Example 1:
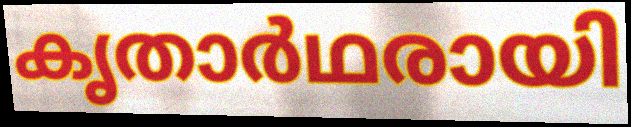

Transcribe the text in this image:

കൃതാർഥരായി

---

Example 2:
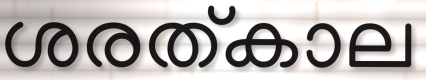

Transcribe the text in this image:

ശരത്കാല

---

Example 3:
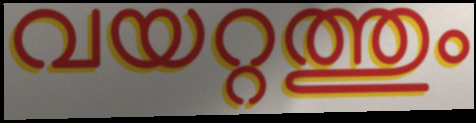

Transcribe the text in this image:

വയറ്റത്തും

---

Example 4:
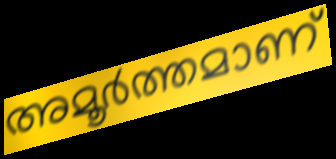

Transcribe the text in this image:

അമൂർത്തമാണ്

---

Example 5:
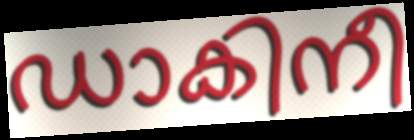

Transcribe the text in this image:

ഡാകിനീ